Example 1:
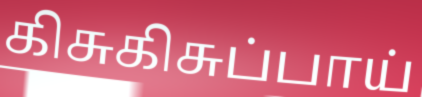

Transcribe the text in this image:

கிசுகிசுப்பாய்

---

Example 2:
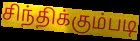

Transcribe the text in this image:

சிந்திக்கும்படி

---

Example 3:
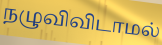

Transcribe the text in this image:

நழுவிவிடாமல்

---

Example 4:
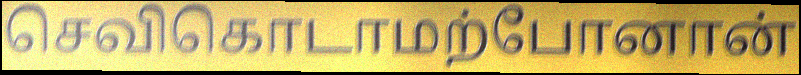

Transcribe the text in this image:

செவிகொடாமற்போனான்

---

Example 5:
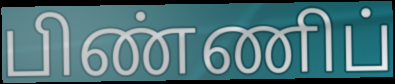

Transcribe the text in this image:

பிண்ணிப்